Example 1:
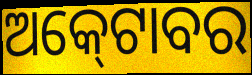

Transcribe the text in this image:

ଅକ୍‍ଟୋବର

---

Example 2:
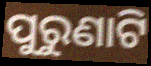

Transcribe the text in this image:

ପୁରୁଣାଟି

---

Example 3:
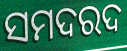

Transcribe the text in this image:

ସମଦରଦ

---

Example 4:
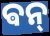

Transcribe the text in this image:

ଵନ୍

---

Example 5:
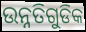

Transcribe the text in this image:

ଉନ୍ନତିଗୁଡିକ